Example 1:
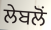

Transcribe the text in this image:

ਲੇਬਲੋਂ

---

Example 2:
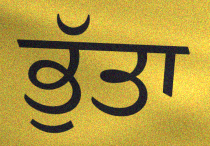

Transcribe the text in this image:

ਭੁੱਤਾ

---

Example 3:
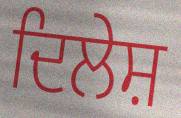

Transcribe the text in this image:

ਦਿਲੇਸ਼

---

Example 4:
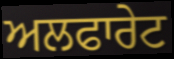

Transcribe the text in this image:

ਅਲਫਾਰੇਟ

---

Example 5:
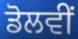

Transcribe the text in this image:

ਡੋਲਵੀਂ